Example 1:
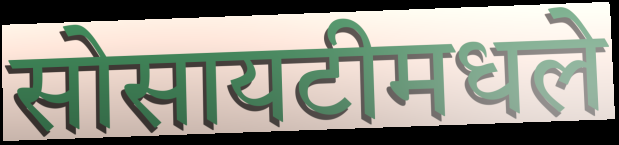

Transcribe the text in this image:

सोसायटीमधले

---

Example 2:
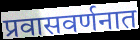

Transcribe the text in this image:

प्रवासवर्णनात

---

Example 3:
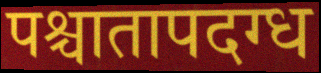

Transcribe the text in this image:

पश्चातापदग्ध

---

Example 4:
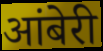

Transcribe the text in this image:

आंबेरी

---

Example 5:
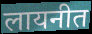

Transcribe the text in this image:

लायनीत